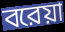
বরেয়া